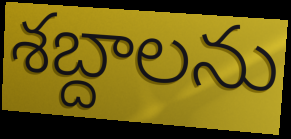
శబ్దాలను